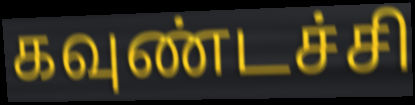
கவுண்டச்சி